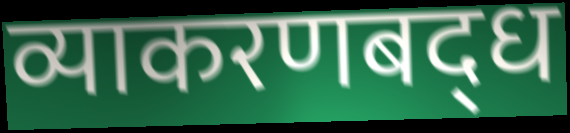
व्याकरणबद्ध